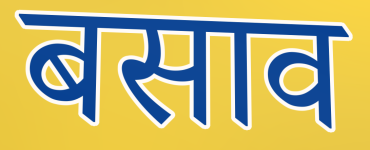
बसाव